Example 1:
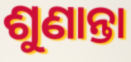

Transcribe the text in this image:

ଶୁଣାନ୍ତା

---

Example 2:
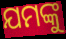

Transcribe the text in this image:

ଯମଙ୍କୁ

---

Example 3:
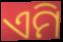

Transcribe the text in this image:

ଏମି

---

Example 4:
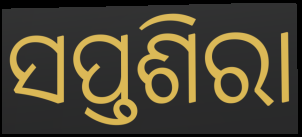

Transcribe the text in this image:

ସପ୍ତଶିରା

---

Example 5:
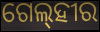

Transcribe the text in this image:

ଗେଲ୍‌ହୀର